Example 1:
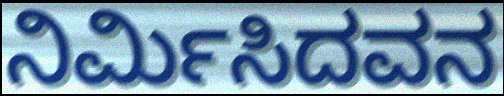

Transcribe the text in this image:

ನಿರ್ಮಿಸಿದವನ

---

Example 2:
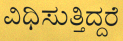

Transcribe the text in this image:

ವಿಧಿಸುತ್ತಿದ್ದರೆ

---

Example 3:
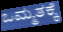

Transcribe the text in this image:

ಒಮ್ಮತಕ್ಕೆ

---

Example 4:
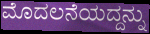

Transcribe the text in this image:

ಮೊದಲನೆಯದ್ದನ್ನು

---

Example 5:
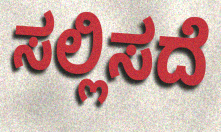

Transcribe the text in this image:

ಸಲ್ಲಿಸದೆ